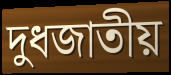
দুধজাতীয়